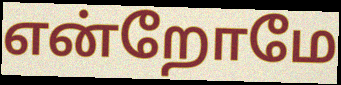
என்றோமே